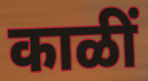
काळीं